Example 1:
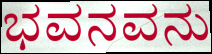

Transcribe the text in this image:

ಭವನವನು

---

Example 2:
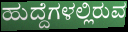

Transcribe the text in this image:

ಹುದ್ದೆಗಳಲ್ಲಿರುವ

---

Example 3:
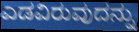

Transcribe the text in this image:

ಎಡವಿರುವುದನ್ನು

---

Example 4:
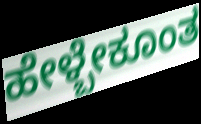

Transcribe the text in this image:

ಹೇಳ್ಬೇಕೂಂತ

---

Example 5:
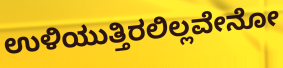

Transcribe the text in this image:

ಉಳಿಯುತ್ತಿರಲಿಲ್ಲವೇನೋ